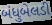
બંધુબેલડી